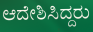
ಆದೇಶಿಸಿದ್ದರು